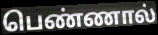
பெண்ணால்